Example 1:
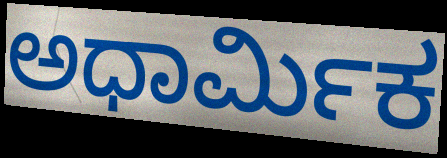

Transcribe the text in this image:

ಅಧಾರ್ಮಿಕ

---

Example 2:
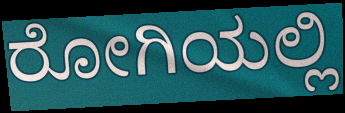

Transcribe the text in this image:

ರೋಗಿಯಲ್ಲಿ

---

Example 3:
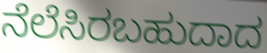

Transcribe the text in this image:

ನೆಲೆಸಿರಬಹುದಾದ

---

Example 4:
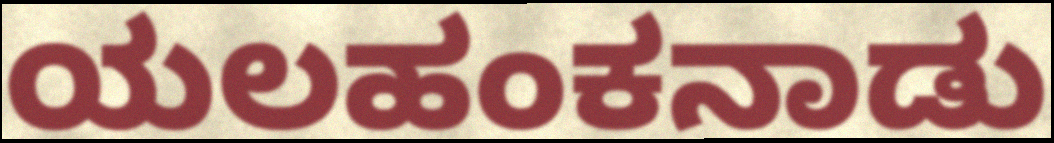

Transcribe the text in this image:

ಯಲಹಂಕನಾಡು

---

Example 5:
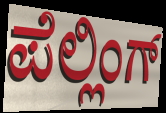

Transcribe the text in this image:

ಪೆಲ್ಲಿಂಗ್